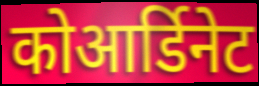
कोआर्डिनेट